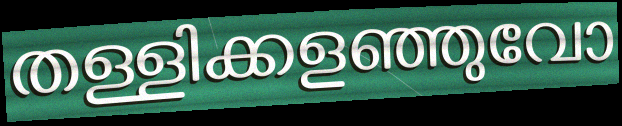
തള്ളിക്കളഞ്ഞുവോ